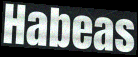
Habeas